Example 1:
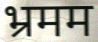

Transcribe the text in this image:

भ्रमम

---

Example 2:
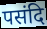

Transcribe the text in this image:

पसंदि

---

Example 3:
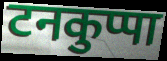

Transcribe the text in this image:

टनकुप्पा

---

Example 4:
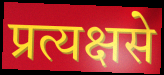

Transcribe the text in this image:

प्रत्यक्षसे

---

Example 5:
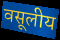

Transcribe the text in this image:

वसूलीय